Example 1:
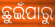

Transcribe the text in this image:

ଛୁଇଁପାରୁ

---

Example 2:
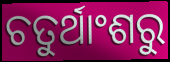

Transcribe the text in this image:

ଚତୁର୍ଥାଂଶରୁ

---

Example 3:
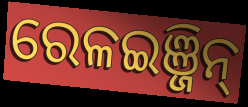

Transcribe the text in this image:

ରେଳଇଞ୍ଜିନ୍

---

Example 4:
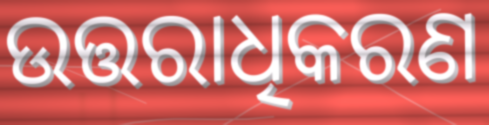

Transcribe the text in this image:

ଉତ୍ତରାଧିକରଣ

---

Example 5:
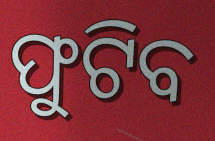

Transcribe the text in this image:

ଫୁଟିବ